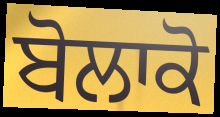
ਬੋਲਾਕੋ